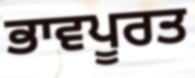
ਭਾਵਪੂਰਤ